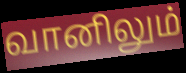
வானிலும்